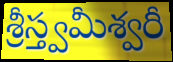
శ్రీస్త్వమీశ్వరీ